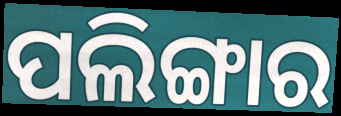
ପଲିଙ୍ଗାର